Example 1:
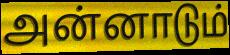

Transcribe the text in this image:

அன்னாடும்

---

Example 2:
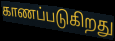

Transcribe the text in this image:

காணப்படுகிறது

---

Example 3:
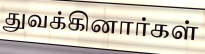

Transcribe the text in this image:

துவக்கினார்கள்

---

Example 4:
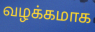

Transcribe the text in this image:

வழக்கமாக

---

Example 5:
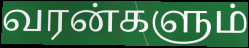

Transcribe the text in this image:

வரன்களும்